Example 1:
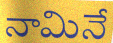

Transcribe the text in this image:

నామినే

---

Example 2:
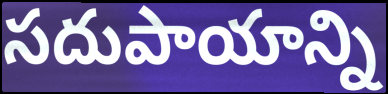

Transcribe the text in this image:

సదుపాయాన్ని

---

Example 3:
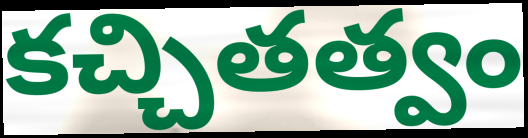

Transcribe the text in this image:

కచ్చితత్వం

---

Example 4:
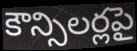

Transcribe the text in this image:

కౌన్సిలర్లపై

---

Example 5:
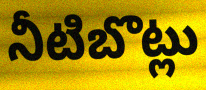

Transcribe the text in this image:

నీటిబొట్లు